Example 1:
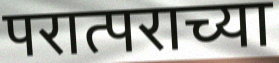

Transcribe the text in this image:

परात्पराच्या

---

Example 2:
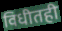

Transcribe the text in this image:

विधीतही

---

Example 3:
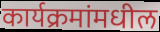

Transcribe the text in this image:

कार्यक्रमांमधील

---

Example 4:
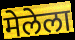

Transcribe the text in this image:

मेलेला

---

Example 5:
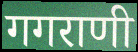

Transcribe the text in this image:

गगराणी